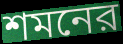
শমনের